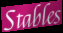
Stables